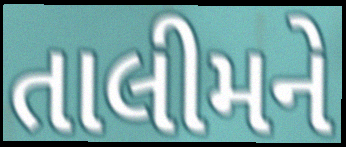
તાલીમને